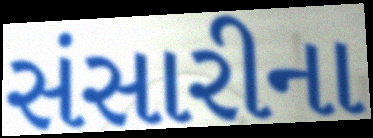
સંસારીના